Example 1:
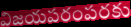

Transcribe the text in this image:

విజయపరంపరకు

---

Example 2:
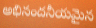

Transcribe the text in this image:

అభినందనీయమైన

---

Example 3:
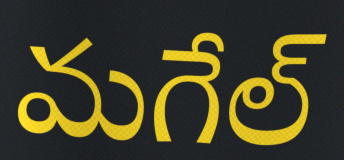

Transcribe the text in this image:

మగేల్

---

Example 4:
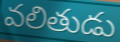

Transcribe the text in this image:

వలితుడు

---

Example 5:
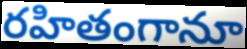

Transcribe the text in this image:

రహితంగానూ